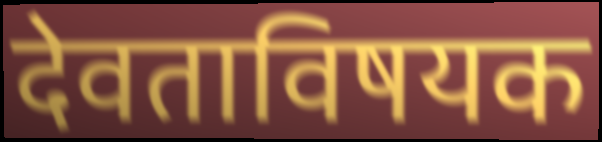
देवताविषयक